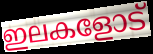
ഇലകളോട്